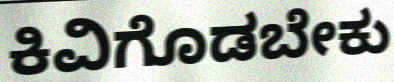
ಕಿವಿಗೊಡಬೇಕು